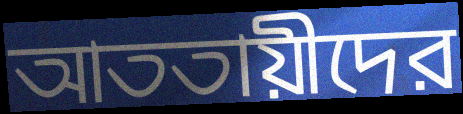
আততায়ীদের